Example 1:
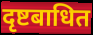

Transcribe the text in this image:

दृष्टबाधित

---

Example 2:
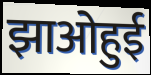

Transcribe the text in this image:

झाओहुई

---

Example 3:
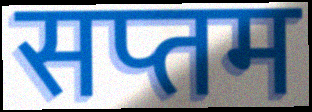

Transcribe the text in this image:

सप्तम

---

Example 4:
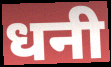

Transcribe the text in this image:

धनी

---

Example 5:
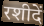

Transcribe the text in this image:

रशीदें